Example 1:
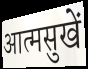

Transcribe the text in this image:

आत्मसुखें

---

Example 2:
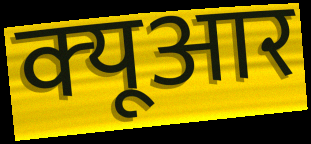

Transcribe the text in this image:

क्‍यूआर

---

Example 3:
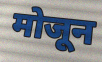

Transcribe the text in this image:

मोजून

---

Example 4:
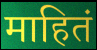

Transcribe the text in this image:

माहितं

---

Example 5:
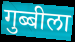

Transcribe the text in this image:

गुब्बीला